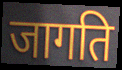
जागति